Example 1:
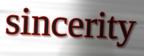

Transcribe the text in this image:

sincerity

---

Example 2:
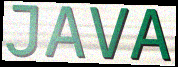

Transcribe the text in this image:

JAVA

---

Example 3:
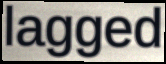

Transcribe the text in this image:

lagged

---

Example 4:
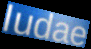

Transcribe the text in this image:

Iudae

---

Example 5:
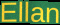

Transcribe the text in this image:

Ellan